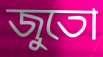
জুতো